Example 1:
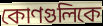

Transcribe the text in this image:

কোণগুলিকে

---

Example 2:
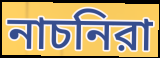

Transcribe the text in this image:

নাচনিরা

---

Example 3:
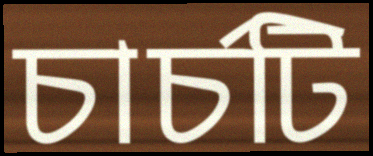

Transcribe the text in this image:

চার্চটি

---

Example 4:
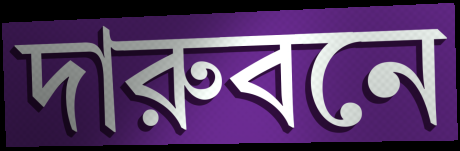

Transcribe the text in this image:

দারুবনে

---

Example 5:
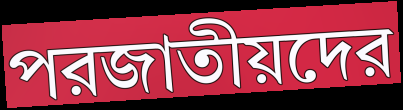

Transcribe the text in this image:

পরজাতীয়দের